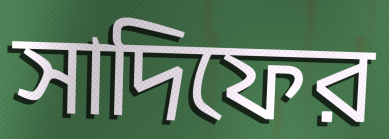
সাদিফের